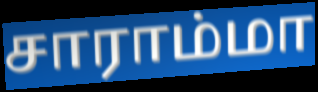
சாராம்மா